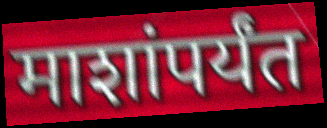
माशांपर्यंत